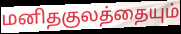
மனிதகுலத்தையும்